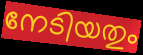
നേടിയതും